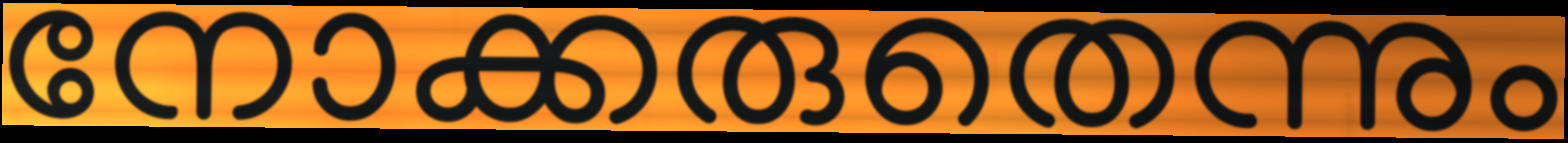
നോക്കരുതെന്നും